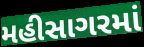
મહીસાગરમાં